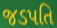
જડપતિ